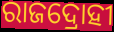
ରାଜଦ୍ରୋହୀ